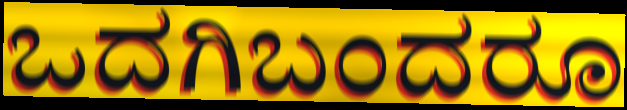
ಒದಗಿಬಂದರೂ